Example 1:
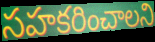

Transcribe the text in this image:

సహకరించాలని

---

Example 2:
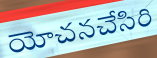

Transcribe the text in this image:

యోచనచేసిరి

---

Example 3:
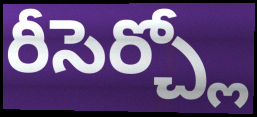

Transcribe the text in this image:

రీసెర్చ్లో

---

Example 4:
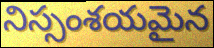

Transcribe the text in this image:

నిస్సంశయమైన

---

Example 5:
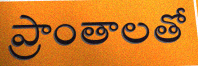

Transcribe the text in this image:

ప్రాంతాలతో